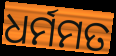
ଧର୍ମମତ